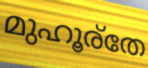
മുഹൂര്തേ